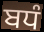
ਬਧੰ